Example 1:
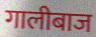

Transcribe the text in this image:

गालीबाज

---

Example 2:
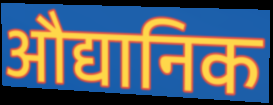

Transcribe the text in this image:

औद्यानिक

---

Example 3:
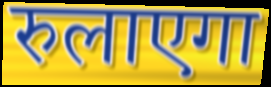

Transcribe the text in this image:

रुलाएगा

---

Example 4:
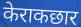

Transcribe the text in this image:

केराकछार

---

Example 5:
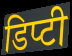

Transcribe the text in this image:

डिप्‍टी